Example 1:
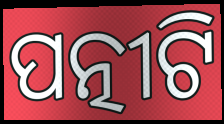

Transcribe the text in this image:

ପତ୍ନୀଟି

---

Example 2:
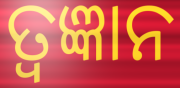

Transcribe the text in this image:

ତ୍ୱଜ୍ଞାନ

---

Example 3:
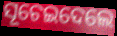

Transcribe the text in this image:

ସୂଚେଇଦେଲେ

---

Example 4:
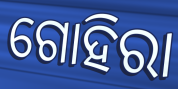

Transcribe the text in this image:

ଗୋହିରା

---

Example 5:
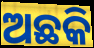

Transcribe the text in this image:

ଅଛକି